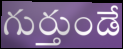
గుర్తుండే